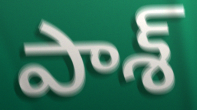
పాశ్